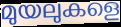
മുയലുകളെ